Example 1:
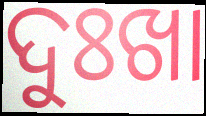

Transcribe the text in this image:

ଦୁଃଖା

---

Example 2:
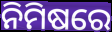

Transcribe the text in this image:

ନିମିଷରେ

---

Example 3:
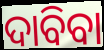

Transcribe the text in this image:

ଦାବିବା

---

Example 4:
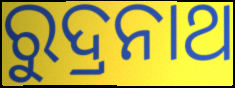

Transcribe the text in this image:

ରୁଦ୍ରନାଥ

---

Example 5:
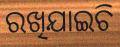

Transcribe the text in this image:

ରଖିଯାଇଚି